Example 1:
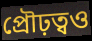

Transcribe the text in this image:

প্রৌঢ়ত্বও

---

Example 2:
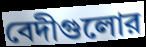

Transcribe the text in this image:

বেদীগুলোর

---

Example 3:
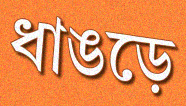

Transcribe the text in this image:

ধাঙড়ে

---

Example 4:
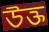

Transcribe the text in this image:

উক্ত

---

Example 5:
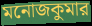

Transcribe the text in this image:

মনোজকুমার